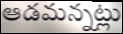
ఆడమన్నట్లు